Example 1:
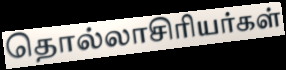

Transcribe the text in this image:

தொல்லாசிரியர்கள்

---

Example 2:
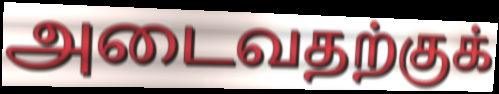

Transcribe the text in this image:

அடைவதற்குக்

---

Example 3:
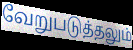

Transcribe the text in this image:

வேறுபடுத்தலும்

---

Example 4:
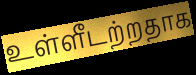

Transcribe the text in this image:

உள்ளீடற்றதாக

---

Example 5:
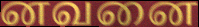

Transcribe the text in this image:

னவனை